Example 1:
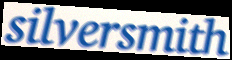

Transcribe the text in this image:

silversmith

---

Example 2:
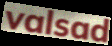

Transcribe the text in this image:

valsad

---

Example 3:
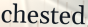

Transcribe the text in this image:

chested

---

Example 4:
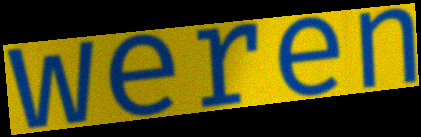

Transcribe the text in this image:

weren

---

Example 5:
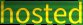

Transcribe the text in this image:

hosted